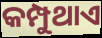
କମ୍ପୁଥାଏ